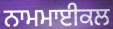
ਨਾਮਮਾਈਕਲ